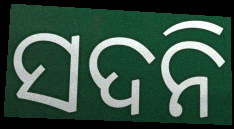
ସଦନି